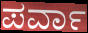
ಪರ್ವಾ